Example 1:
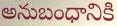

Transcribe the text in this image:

అనుబంధానికి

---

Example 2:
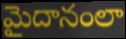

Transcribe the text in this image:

మైదానంలా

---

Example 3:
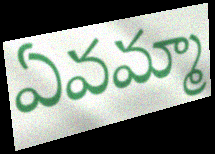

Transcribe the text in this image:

ఏవమ్మా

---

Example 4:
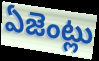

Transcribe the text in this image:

ఏజెంట్లు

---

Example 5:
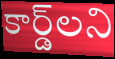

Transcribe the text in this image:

కార్డ్‌లని